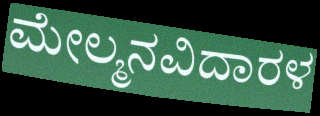
ಮೇಲ್ಮನವಿದಾರಳ